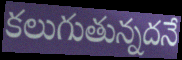
కలుగుతున్నదనే